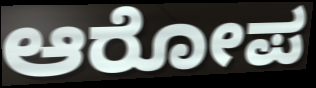
ಆರೋಪ